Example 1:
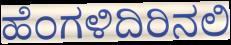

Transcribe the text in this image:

ಹೆಂಗಳಿದಿರಿನಲಿ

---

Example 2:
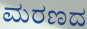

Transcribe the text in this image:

ಮರಣದ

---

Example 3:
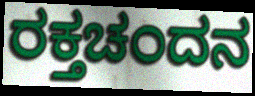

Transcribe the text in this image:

ರಕ್ತಚಂದನ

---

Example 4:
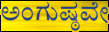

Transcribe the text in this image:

ಅಂಗುಷ್ಠವೇ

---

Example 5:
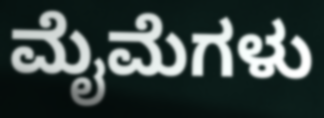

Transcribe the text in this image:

ಮೈಮೆಗಳು